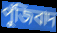
পুঁজিবাদ